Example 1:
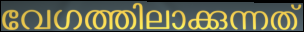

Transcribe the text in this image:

വേഗത്തിലാക്കുന്നത്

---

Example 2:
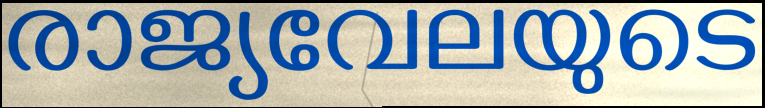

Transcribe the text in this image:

രാജ്യവേലയുടെ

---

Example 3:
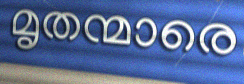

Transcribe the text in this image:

മൃതന്മാരെ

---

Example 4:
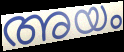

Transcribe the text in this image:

അയം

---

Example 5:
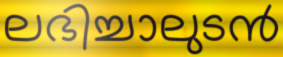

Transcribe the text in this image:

ലഭിച്ചാലുടൻ